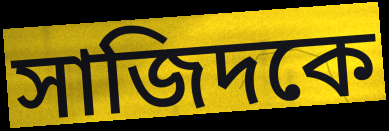
সাজিদকে